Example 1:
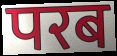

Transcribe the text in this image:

परब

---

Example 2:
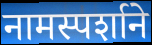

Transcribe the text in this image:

नामस्पर्शाने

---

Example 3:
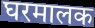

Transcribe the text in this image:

घरमालक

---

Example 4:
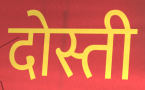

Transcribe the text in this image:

दोस्ती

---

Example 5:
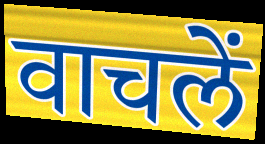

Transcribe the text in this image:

वाचलें